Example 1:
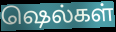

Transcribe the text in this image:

ஷெல்கள்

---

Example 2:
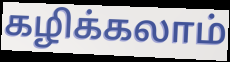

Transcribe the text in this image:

கழிக்கலாம்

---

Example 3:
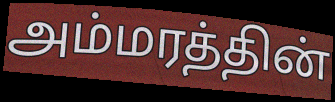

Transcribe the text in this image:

அம்மரத்தின்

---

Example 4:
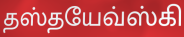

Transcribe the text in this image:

தஸ்தயேவ்ஸ்கி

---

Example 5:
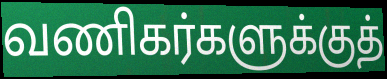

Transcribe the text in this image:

வணிகர்களுக்குத்